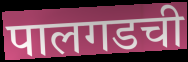
पालगडची